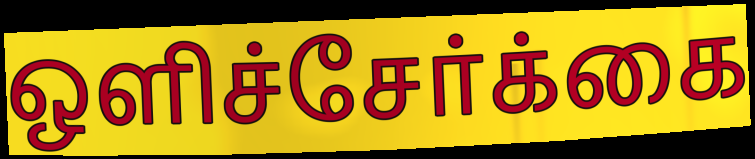
ஒளிச்சேர்க்கை